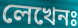
লেখেনঃ